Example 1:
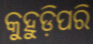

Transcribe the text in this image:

କୁହୁଡ଼ିପରି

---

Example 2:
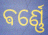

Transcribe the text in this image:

ଵର୍ଣ୍ଣେ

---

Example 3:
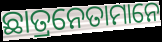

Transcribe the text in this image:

ଛାତ୍ରନେତାମାନେ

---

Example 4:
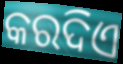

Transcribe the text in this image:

କରଦିଏ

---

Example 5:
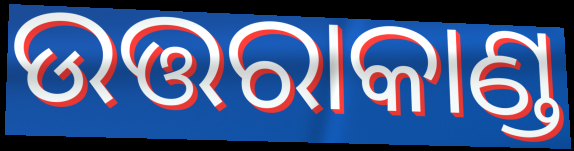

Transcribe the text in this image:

ଉତ୍ତରାକାଣ୍ଡ